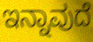
ಇನ್ನಾವುದೆ